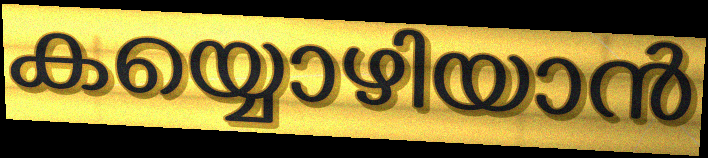
കയ്യൊഴിയാൻ